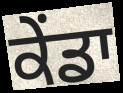
ਕੇਂਡਾ